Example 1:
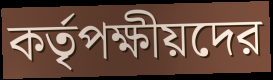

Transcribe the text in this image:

কর্তৃপক্ষীয়দের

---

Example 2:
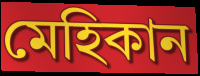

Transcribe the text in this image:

মেহিকান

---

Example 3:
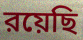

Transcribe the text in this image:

রয়েছি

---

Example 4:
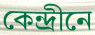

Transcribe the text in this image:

কেন্দ্রীনে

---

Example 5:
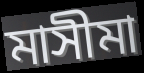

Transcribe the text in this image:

মাসীমা